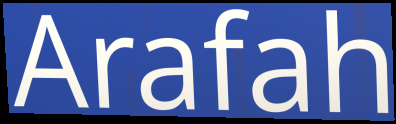
Arafah